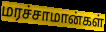
மரச்சாமான்கள்